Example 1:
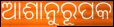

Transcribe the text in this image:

ଆଶାନୁରୂପକ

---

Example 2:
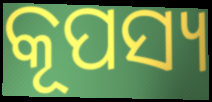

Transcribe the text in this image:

କୂପସ୍ୟ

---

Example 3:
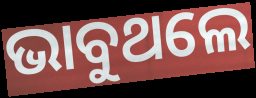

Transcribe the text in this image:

ଭାବୁଥଲେ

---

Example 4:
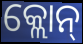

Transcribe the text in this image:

କ୍ଲୋନ୍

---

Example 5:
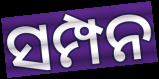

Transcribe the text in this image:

ସମ୍ପନ